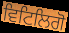
ਵਿਟਿਲਿਗੋ